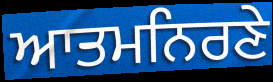
ਆਤਮਨਿਰਣੇ